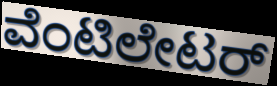
ವೆಂಟಿಲೇಟರ್